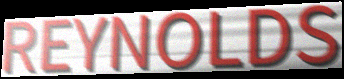
REYNOLDS